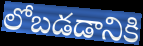
లోబడడానికి